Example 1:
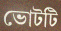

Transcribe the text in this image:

ভোটটি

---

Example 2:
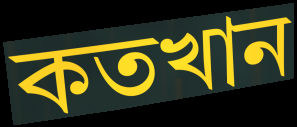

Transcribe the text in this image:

কতখান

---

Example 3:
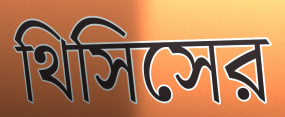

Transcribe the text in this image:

থিসিসের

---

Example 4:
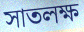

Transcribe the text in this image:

সাতলক্ষ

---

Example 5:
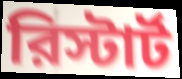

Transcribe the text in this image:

রিস্টার্ট